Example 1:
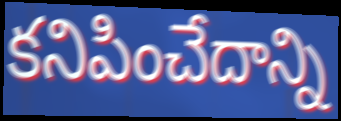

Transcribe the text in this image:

కనిపించేదాన్ని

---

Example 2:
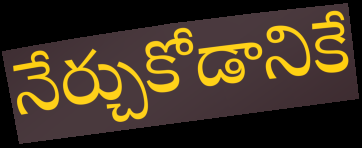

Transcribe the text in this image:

నేర్చుకోడానికే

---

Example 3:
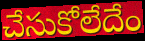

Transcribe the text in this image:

చేసుకోలేదేం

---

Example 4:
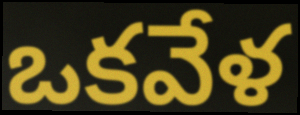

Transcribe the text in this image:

ఒకవేళ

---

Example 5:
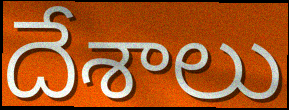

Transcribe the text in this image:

దేశాలు